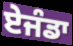
ਏਜੰਡਾ